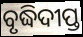
ବୃଦ୍ଧିଦୀପ୍ତ